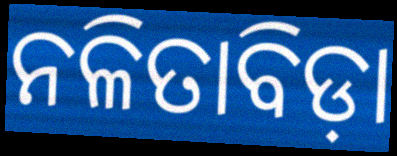
ନଳିତାବିଡ଼ା